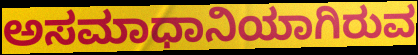
ಅಸಮಾಧಾನಿಯಾಗಿರುವ